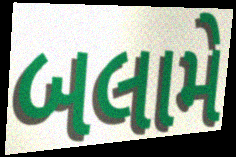
બલામે